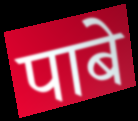
पाबे